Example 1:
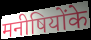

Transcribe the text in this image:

मनीषियोंके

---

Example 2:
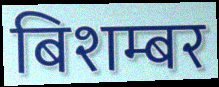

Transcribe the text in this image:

बिशम्बर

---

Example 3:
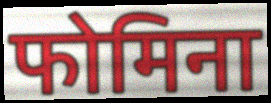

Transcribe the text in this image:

फोमिना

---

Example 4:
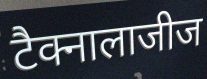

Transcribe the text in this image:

टैक्नालाजीज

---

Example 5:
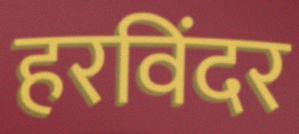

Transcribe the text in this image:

हरविंदर